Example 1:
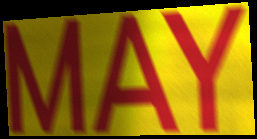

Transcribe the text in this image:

MAY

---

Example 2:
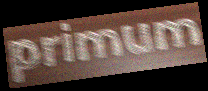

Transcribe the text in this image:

primum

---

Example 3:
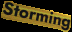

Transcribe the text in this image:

Storming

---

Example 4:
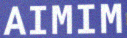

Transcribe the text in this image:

AIMIM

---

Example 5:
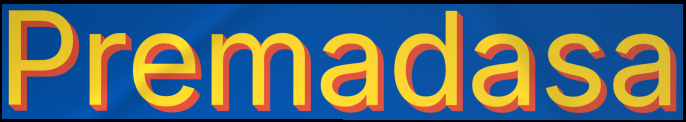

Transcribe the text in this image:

Premadasa